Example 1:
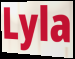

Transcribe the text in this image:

Lyla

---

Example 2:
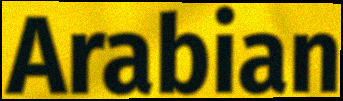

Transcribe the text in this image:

Arabian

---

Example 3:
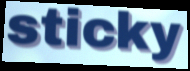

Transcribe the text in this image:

sticky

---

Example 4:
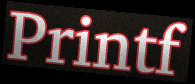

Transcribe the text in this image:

Printf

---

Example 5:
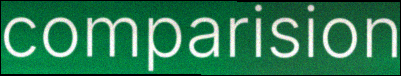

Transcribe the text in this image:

comparision